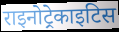
राइनोट्रेकाइटिस